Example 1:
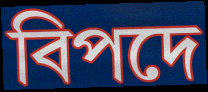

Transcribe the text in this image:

বিপদে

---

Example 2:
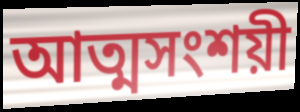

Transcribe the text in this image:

আত্মসংশয়ী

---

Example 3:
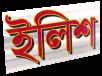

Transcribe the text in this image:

ইলিশ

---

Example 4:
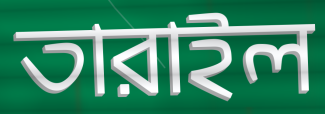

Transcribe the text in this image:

তারাইল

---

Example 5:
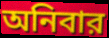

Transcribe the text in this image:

অনিবার